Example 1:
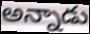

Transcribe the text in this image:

అన్నాడు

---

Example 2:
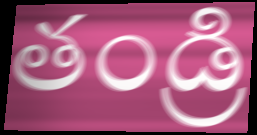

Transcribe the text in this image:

తండ్రి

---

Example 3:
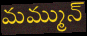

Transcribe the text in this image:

మమ్మున్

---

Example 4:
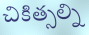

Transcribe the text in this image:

చికిత్సల్ని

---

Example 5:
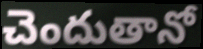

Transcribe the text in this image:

చెందుతానో